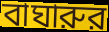
বাঘারুর